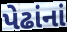
પેઢાંનાં